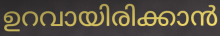
ഉറവായിരിക്കാൻ